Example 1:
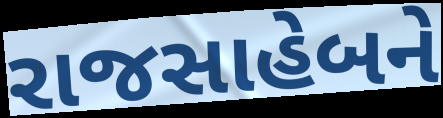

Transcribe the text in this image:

રાજસાહેબને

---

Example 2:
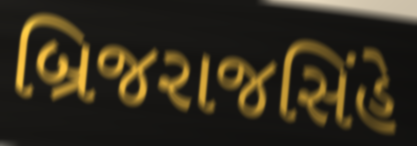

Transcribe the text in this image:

બ્રિજરાજસિંહે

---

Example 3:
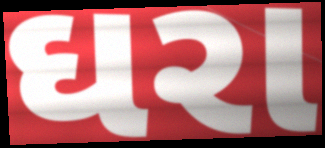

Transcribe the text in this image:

ઘરા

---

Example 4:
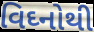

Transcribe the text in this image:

વિઘ્નોથી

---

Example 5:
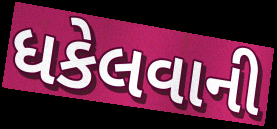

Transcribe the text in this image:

ધકેલવાની